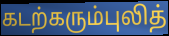
கடற்கரும்புலித்